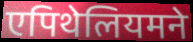
एपिथेलियमने